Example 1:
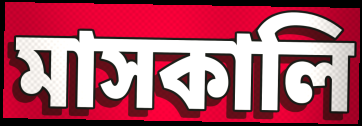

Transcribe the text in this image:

মাসকালি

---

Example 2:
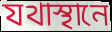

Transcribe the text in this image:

যথাস্থানে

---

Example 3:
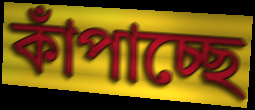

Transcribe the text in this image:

কাঁপাচ্ছে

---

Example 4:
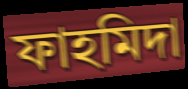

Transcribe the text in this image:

ফাহমিদা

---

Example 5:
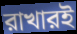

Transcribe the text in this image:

রাখারই